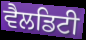
ਵੈਲਡਿਟੀ